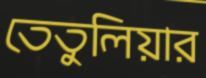
তেতুলিয়ার